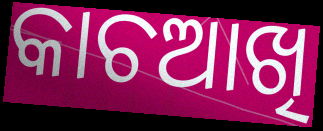
କାଚଆଖି